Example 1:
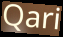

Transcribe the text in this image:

Qari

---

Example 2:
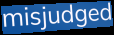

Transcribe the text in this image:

misjudged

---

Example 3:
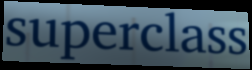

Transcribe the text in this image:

superclass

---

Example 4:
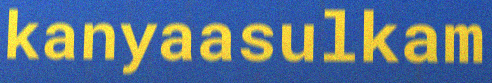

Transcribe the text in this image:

kanyaasulkam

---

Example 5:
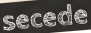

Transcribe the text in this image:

secede